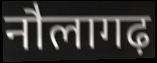
नौलागढ़